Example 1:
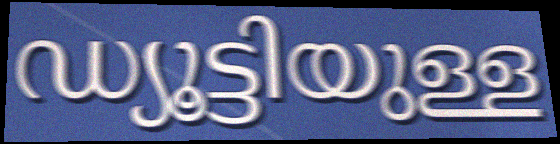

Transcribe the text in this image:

ഡ്യൂട്ടിയുള്ള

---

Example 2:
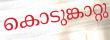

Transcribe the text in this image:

കൊടുങ്കാറ്റു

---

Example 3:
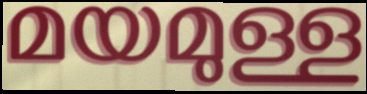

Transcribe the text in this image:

മയമുള്ള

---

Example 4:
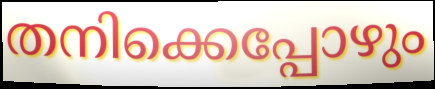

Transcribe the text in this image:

തനിക്കെപ്പോഴും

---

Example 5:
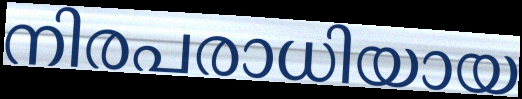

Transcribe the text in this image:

നിരപരാധിയായ